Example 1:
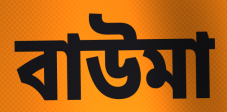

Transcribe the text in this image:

বাউমা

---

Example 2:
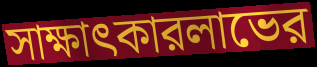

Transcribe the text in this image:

সাক্ষাৎকারলাভের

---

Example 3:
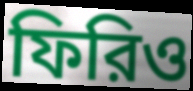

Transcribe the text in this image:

ফিরিও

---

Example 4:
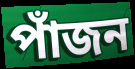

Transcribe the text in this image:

পাঁজন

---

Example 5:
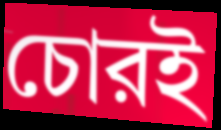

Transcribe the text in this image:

চোরই